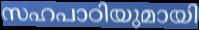
സഹപാഠിയുമായി